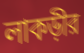
লাকড়ীর